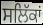
ਸਲਿੱਕਾਂ